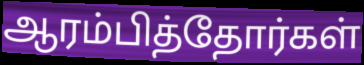
ஆரம்பித்தோர்கள்